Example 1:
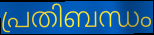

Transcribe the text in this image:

പ്രതിബന്ധം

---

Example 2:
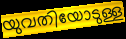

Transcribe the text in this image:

യുവതിയോടുള്ള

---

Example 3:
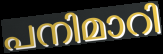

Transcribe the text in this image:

പനിമാറി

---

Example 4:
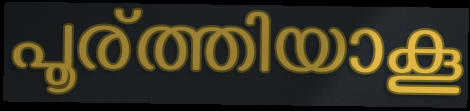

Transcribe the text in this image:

പൂര്ത്തിയാകൂ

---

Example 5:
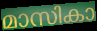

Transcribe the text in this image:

മാസികാ